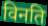
विनति